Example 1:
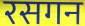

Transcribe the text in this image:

रसगन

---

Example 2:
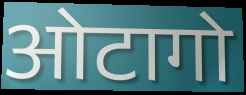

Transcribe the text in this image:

ओटागो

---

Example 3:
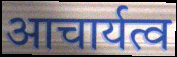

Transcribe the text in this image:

आचार्यत्व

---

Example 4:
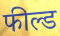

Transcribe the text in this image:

फील्‍ड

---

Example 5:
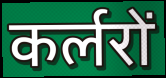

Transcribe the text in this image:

कर्लरों